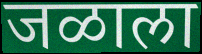
जळाला